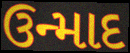
ઉન્માદ